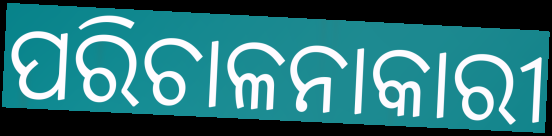
ପରିଚାଳନାକାରୀ